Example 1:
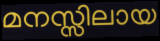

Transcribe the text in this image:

മനസ്സിലായ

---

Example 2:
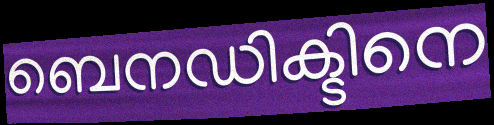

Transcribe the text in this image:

ബെനഡിക്ടിനെ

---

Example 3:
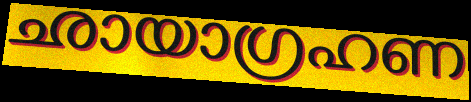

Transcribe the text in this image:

ഛായാഗ്രഹണ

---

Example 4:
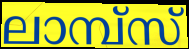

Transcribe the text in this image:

ലാമ്പ്സ്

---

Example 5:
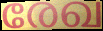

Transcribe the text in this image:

രേഖ